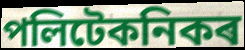
পলিটেকনিকৰ